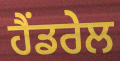
ਹੈਂਡਰੇਲ